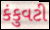
કંકુવટી